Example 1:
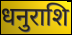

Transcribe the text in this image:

धनुराशि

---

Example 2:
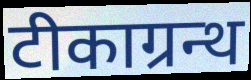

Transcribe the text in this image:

टीकाग्रन्थ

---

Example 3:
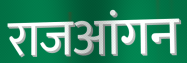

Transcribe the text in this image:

राजआंगन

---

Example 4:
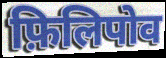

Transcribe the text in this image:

फ़िलिपोव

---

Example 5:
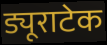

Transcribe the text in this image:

ड्यूराटेक